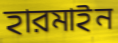
হারমাইন